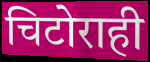
चिटोराही